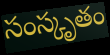
సంస్కృతం